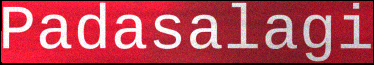
Padasalagi